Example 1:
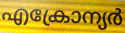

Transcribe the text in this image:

എക്രോന്യർ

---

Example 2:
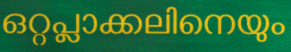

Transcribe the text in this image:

ഒറ്റപ്ലാക്കലിനെയും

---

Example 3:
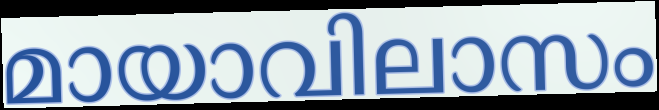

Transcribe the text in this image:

മായാവിലാസം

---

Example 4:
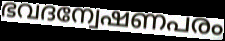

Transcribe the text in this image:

ഭവദന്വേഷണപരം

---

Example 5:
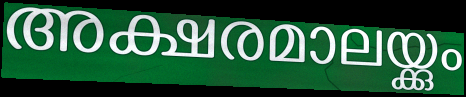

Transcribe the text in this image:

അക്ഷരമാലയ്ക്കും